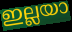
ഇല്ലയാ